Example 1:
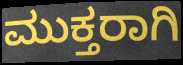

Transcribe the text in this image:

ಮುಕ್ತರಾಗಿ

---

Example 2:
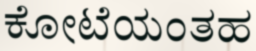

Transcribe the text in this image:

ಕೋಟೆಯಂತಹ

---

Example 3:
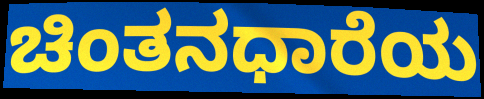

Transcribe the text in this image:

ಚಿಂತನಧಾರೆಯ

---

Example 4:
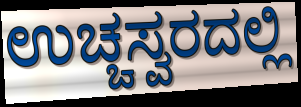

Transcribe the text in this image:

ಉಚ್ಚಸ್ವರದಲ್ಲಿ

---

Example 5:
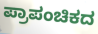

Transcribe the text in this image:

ಪ್ರಾಪಂಚಿಕದ